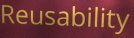
Reusability